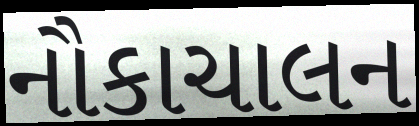
નૌકાચાલન